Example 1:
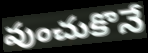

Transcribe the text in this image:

వుంచుకొనే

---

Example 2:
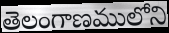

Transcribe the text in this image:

తెలంగాణములోని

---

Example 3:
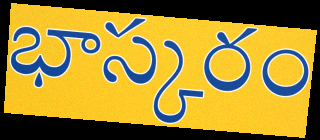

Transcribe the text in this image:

భాస్కరం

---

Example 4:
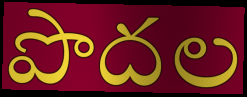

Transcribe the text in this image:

పొదల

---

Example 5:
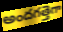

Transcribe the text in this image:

అందగత్తెగా